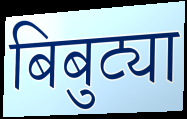
बिबुट्या